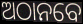
ଅଠାନବେ